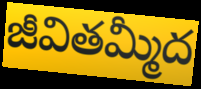
జీవితమ్మీద